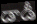
డాడీ